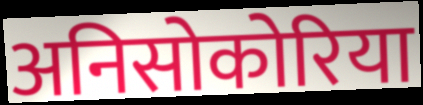
अनिसोकोरिया